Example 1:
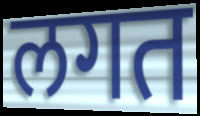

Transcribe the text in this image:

लगत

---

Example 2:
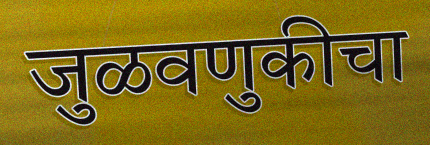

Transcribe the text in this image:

जुळवणुकीचा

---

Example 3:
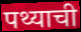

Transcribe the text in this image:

पथ्याची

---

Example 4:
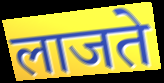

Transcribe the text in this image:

लाजते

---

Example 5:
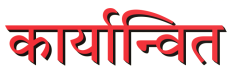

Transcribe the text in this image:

कार्यान्वित